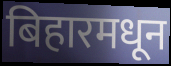
बिहारमधून